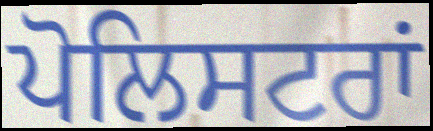
ਪੋਲਿਸਟਰਾਂ